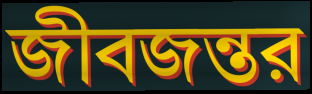
জীবজন্তর